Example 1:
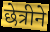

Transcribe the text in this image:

छेत्रीने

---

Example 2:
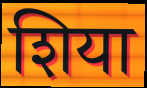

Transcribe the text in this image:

शिया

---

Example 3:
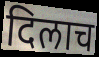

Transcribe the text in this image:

दिलाच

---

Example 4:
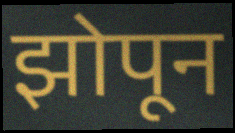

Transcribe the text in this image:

झोपून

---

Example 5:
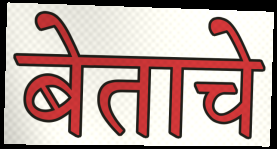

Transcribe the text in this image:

बेताचे